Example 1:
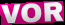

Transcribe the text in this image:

VOR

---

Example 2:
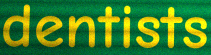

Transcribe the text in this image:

dentists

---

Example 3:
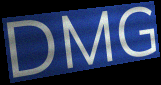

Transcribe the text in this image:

DMG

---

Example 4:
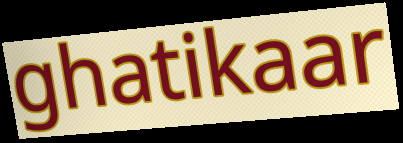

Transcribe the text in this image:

ghatikaar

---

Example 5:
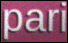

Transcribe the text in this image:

pari